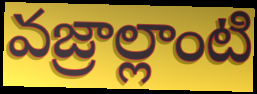
వజ్రాల్లాంటి